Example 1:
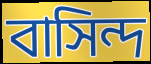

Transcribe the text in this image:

বাসিন্দ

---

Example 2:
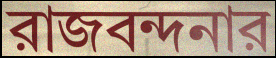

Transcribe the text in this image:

রাজবন্দনার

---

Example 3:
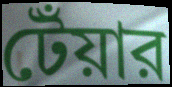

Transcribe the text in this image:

টেঁয়ার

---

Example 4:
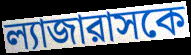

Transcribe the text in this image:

ল্যাজারাসকে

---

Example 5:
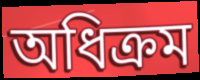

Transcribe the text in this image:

অধিক্রম